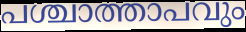
പശ്ചാത്താപവും